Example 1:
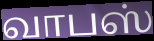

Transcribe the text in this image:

வாபஸ்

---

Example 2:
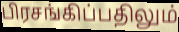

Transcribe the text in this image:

பிரசங்கிப்பதிலும்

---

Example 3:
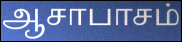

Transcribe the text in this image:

ஆசாபாசம்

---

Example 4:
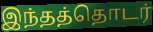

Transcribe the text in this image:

இந்தத்தொடர்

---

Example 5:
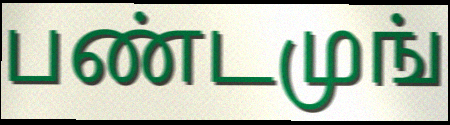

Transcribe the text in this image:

பண்டமுங்